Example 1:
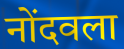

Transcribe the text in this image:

नोंदवला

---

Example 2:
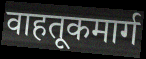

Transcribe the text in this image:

वाहतूकमार्ग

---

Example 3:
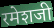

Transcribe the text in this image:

रमेशजी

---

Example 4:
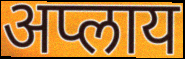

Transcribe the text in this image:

अप्लाय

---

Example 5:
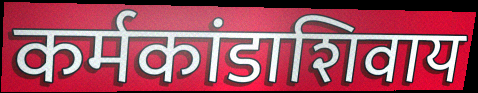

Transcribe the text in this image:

कर्मकांडाशिवाय